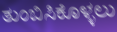
ತುಂಬಿಸಿಕೊಳ್ಳಲು